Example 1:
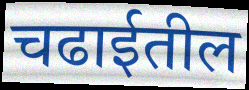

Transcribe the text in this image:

चढाईतील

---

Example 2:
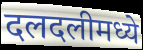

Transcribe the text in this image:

दलदलीमध्ये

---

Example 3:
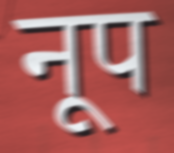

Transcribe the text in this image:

नूप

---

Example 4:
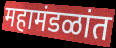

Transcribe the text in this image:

महामंडळांत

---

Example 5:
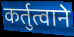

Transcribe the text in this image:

कर्तुत्वाने